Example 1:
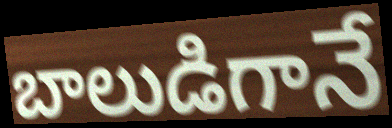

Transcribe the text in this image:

బాలుడిగానే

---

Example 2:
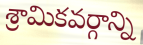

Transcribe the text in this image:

శ్రామికవర్గాన్ని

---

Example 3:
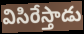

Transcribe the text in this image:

విసిరేస్తాడు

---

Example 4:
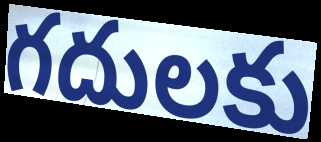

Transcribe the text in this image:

గదులకు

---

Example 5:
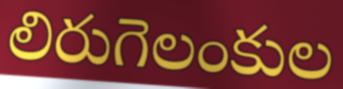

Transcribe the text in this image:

లిరుగెలంకుల